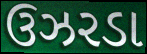
ઉઝરડા